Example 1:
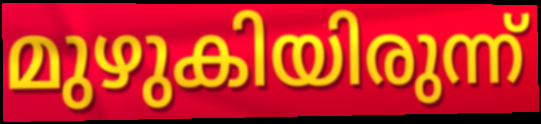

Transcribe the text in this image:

മുഴുകിയിരുന്ന്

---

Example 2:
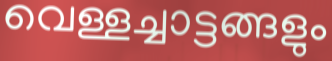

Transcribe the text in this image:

വെള്ളച്ചാട്ടങ്ങളും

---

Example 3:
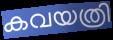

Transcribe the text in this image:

കവയത്രി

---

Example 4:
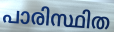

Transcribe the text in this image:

പാരിസ്ഥിത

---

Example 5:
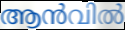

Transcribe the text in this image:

ആൻവിൽ